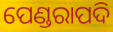
ପେଣ୍ଡରାପଦି